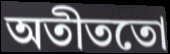
অতীততো